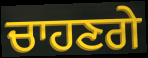
ਚਾਹਣਗੇ